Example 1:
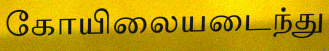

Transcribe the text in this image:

கோயிலையடைந்து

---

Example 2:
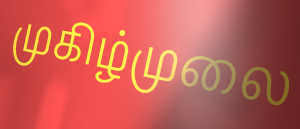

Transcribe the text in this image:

முகிழ்முலை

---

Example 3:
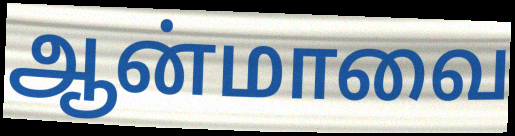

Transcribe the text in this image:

ஆன்மாவை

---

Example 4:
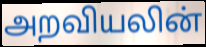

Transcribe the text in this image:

அறவியலின்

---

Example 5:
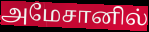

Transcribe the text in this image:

அமேசானில்